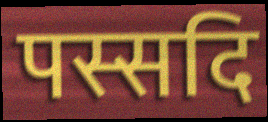
पस्सदि